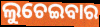
ଲୁଚେଇବାର